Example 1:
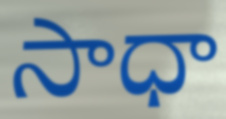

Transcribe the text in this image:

సాధా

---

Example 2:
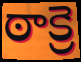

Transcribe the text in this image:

ఠాక్రె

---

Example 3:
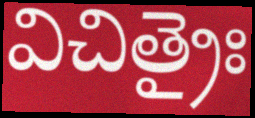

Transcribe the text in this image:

విచిత్రైః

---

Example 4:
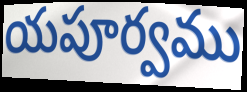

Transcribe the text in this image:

యపూర్వము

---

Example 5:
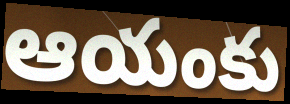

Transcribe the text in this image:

ఆయంకు